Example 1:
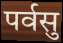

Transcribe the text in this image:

पर्वसु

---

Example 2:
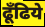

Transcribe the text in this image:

ढूँढिये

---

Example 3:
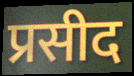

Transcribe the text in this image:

प्रसीद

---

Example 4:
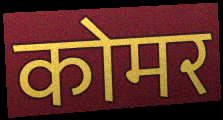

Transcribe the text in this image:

कोमर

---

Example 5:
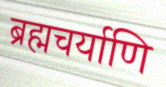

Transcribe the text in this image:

ब्रह्मचर्याणि